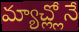
మ్యాచ్ల్లోనే